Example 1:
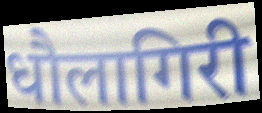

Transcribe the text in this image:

धौलागिरी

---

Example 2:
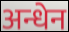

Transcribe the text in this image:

अन्धेन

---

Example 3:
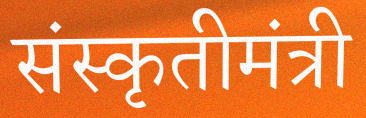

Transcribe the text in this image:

संस्कृतीमंत्री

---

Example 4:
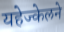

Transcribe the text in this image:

यहेज्केलने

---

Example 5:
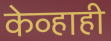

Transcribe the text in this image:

केव्हाही